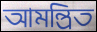
আমন্ত্রিত